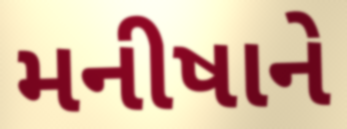
મનીષાને